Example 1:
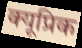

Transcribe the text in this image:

क्यूप्रिक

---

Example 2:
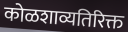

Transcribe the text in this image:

कोळशाव्यतिरिक्त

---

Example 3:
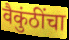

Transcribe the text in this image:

वैकुंठींचा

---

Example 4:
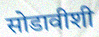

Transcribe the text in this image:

सोडावीशी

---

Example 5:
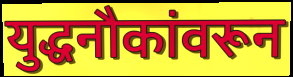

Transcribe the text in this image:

युद्धनौकांवरून